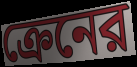
ক্রেনের